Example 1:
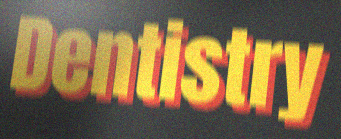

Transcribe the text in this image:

Dentistry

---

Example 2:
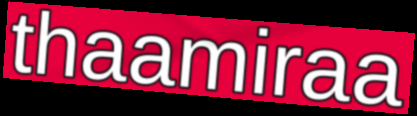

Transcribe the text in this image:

thaamiraa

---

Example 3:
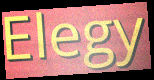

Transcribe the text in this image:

Elegy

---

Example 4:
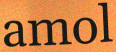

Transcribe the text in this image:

amol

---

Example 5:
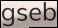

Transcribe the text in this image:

gseb